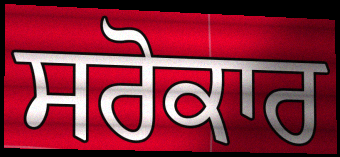
ਸਰੋਕਾਰ